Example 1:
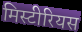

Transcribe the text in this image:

मिस्टीरियस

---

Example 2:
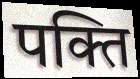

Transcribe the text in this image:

पक्ति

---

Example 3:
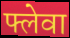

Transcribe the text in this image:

फ्लेवा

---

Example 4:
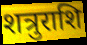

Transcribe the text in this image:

शत्रुराशि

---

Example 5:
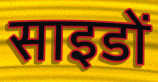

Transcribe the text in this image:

साइडों